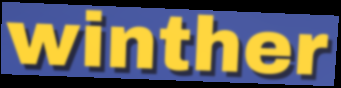
winther